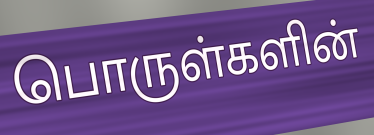
பொருள்களின்